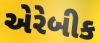
એરેબીક